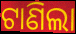
ଟାଣିଲା